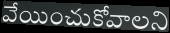
వేయించుకోవాలని